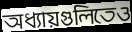
অধ্যায়গুলিতেও